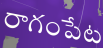
రాగంపేట